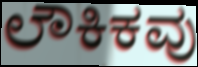
ಲೌಕಿಕವು